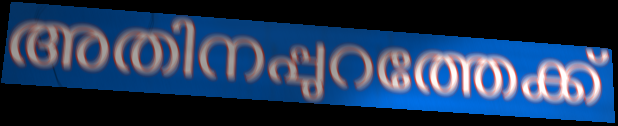
അതിനപ്പുറത്തേക്ക്